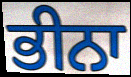
ਭੀਨਾ